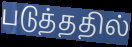
படுத்ததில்